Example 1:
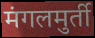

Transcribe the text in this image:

मंगलमुर्ती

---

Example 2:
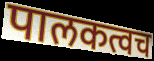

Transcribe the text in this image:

पालकत्वच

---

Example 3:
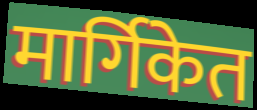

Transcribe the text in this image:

मार्गिकेत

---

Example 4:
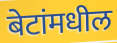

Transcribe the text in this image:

बेटांमधील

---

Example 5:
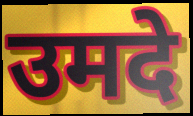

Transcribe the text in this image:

उमदे